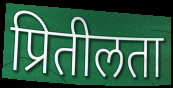
प्रितीलता